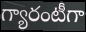
గ్యారంటీగా